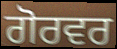
ਗੋਰਵਰ